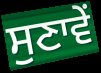
ਸੁਣਾਵੇਂ